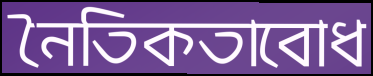
নৈতিকতাবোধ